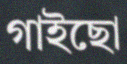
গাইছো